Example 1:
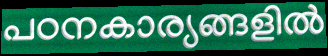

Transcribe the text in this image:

പഠനകാര്യങ്ങളിൽ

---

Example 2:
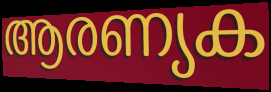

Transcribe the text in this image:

ആരണ്യക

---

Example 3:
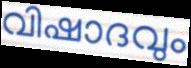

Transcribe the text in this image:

വിഷാദവും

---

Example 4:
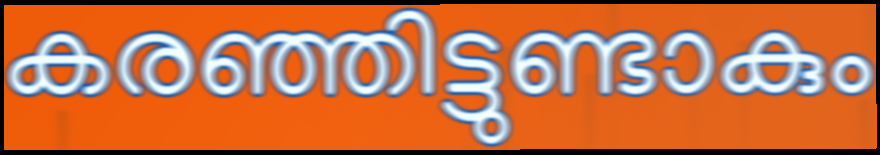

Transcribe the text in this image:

കരഞ്ഞിട്ടുണ്ടാകും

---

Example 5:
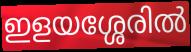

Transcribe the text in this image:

ഇളയശ്ശേരിൽ